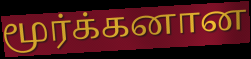
மூர்க்கனான